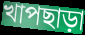
খাপছাড়া